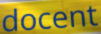
docent